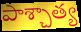
పాశ్చాత్య